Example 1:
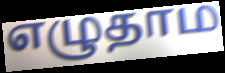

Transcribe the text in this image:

எழுதாம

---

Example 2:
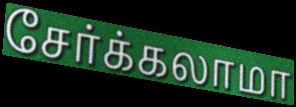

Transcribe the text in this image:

சேர்க்கலாமா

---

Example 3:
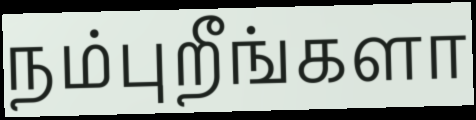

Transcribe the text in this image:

நம்புறீங்களா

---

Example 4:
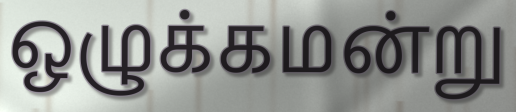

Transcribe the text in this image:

ஒழுக்கமன்று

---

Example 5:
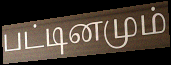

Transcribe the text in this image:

பட்டினமும்